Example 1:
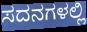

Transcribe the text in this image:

ಸದನಗಳಲ್ಲಿ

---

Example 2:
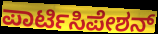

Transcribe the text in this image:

ಪಾರ್ಟಿಸಿಪೇಶನ್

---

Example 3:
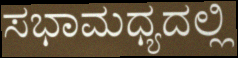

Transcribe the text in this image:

ಸಭಾಮಧ್ಯದಲ್ಲಿ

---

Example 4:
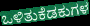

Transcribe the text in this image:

ಒಳಿತುಕೆಡಕುಗಳ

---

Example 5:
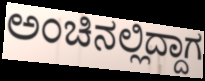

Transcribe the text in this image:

ಅಂಚಿನಲ್ಲಿದ್ದಾಗ